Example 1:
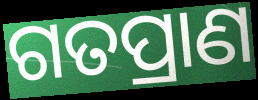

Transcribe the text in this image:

ଗତପ୍ରାଣ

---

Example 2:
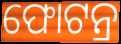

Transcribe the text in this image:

ଫୋଟନ୍ର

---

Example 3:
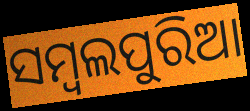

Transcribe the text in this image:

ସମ୍ୱଲପୁରିଆ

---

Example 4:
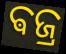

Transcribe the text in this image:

ଵଜ୍ର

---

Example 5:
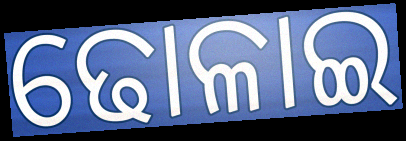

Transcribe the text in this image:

ଢୋଳାଇ